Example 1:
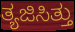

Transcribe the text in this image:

ತ್ಯಜಿಸಿತ್ತು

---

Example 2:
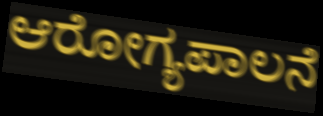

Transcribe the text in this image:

ಆರೋಗ್ಯಪಾಲನೆ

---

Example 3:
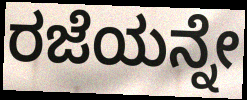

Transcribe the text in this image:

ರಜೆಯನ್ನೇ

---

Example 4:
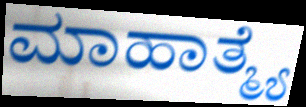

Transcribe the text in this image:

ಮಾಹಾತ್ಮ್ಯೆ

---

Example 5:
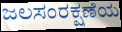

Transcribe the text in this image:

ಜಲಸಂರಕ್ಷಣೆಯ